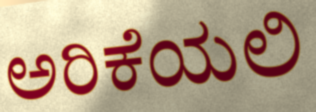
ಅರಿಕೆಯಲಿ